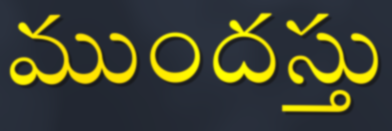
ముందస్తు